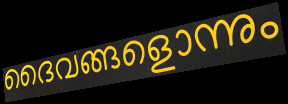
ദൈവങ്ങളൊന്നും